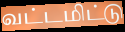
வட்டமிட்டு